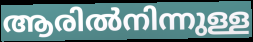
ആരിൽനിന്നുള്ള